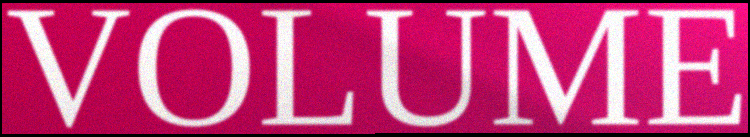
VOLUME